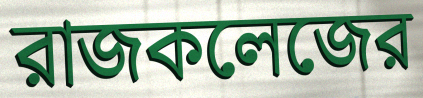
রাজকলেজের